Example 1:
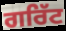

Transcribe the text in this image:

ਗਰਿੱਟ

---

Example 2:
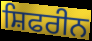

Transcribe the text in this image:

ਸ਼ਿਫਰੀਨ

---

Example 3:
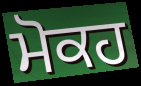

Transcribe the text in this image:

ਮੋਕਹ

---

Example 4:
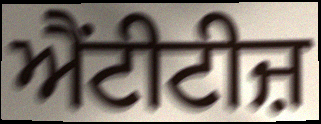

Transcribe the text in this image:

ਐਂਟੀਟੀਜ਼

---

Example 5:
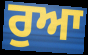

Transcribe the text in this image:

ਰੁਆ